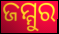
ଜମ୍ମୁର